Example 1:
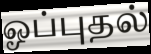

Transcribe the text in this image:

ஓப்புதல்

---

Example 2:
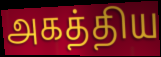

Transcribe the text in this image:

அகத்திய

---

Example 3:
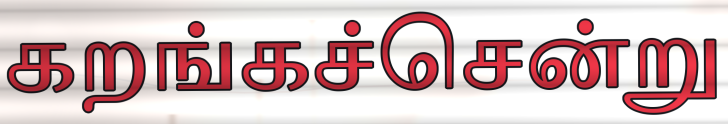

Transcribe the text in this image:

கறங்கச்சென்று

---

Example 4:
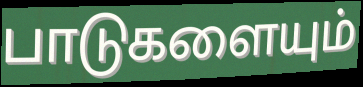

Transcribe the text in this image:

பாடுகளையும்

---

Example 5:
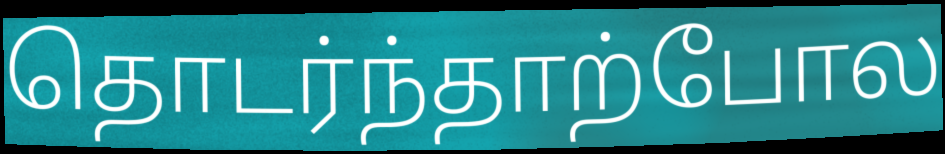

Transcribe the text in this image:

தொடர்ந்தாற்போல